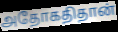
அதோகதிதான்